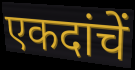
एकदांचें